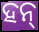
ହନ୍